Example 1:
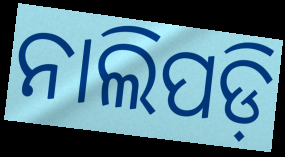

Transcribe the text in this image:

ନାଲିପଡ଼ି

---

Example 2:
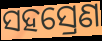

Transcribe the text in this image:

ସହସ୍ରେଣ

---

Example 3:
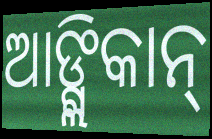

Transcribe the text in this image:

ଆଙ୍ଗ୍ଲିକାନ୍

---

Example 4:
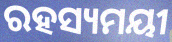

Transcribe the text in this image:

ରହସ୍ୟମୟୀ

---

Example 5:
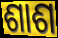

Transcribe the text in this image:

ଶାଶ